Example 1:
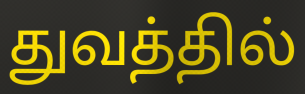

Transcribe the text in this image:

துவத்தில்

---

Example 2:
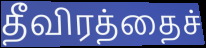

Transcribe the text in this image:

தீவிரத்தைச்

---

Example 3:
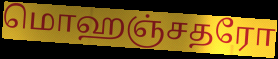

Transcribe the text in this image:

மொஹஞ்சதரோ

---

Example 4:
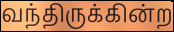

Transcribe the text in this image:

வந்திருக்கின்ற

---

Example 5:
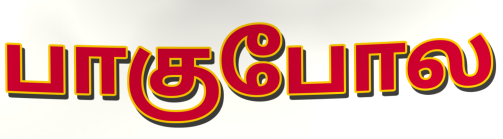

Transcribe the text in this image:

பாகுபோல